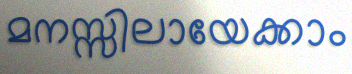
മനസ്സിലായേക്കാം